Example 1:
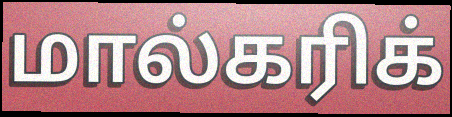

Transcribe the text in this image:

மால்கரிக்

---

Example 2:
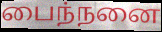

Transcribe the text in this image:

பைந்நனை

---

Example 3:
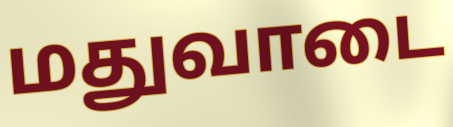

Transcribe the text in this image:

மதுவாடை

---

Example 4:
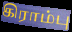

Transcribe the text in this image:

கிராம்பு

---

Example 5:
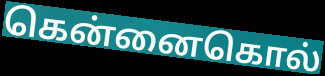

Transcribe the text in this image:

கென்னைகொல்